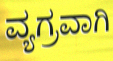
ವ್ಯಗ್ರವಾಗಿ